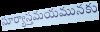
సూర్యాస్తమయమునకు